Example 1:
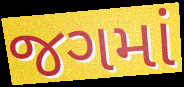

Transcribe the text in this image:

જગમાં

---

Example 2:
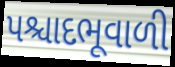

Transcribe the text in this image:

પશ્ચાદભૂવાળી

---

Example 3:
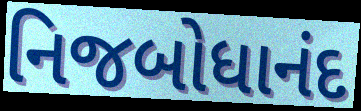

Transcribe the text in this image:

નિજબોધાનંદ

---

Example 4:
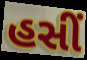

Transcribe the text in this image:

હસીં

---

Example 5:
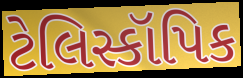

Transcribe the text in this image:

ટેલિસ્કૉપિક